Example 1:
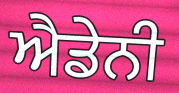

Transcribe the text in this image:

ਐਡੇਨੀ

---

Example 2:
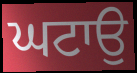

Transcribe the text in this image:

ਘਟਾਉ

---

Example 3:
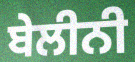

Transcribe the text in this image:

ਬੇਲੀਨੀ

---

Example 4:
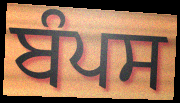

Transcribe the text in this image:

ਬੰਪਸ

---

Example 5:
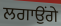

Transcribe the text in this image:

ਲਗਾਉਂਗੇ